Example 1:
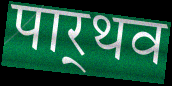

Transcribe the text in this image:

पार्थव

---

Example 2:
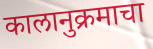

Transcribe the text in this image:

कालानुक्रमाचा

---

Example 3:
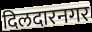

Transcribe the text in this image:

दिलदारनगर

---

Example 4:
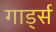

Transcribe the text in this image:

गार्ड्स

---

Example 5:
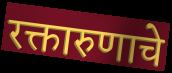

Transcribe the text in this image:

रक्तारुणाचे